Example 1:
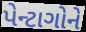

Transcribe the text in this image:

પેન્ટાગોને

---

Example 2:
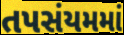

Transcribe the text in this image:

તપસંયમમાં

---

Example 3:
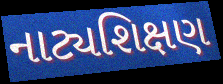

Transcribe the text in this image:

નાટ્યશિક્ષણ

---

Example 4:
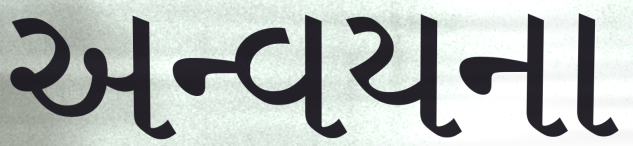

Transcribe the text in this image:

અન્વયના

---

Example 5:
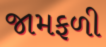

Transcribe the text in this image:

જામફળી